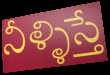
నీళ్ళిస్తే